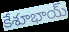
కేశూభాయ్